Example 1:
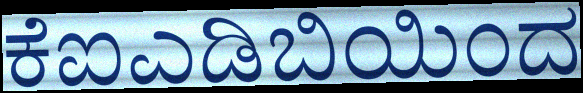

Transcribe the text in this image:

ಕೆಐಎಡಿಬಿಯಿಂದ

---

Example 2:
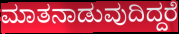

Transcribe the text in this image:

ಮಾತನಾಡುವುದಿದ್ದರೆ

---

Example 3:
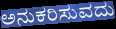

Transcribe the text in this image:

ಅನುಕರಿಸುವದು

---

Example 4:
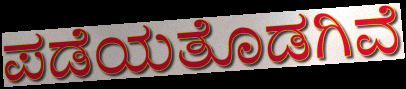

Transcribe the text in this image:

ಪಡೆಯತೊಡಗಿವೆ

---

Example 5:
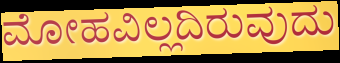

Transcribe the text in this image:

ಮೋಹವಿಲ್ಲದಿರುವುದು